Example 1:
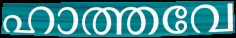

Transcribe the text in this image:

ഹാത്തവേ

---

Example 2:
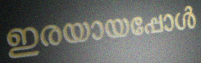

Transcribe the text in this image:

ഇരയായപ്പോൾ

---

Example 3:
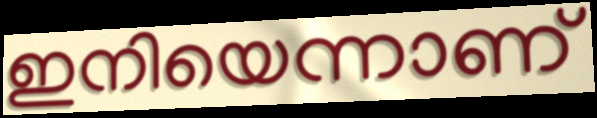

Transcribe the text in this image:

ഇനിയെന്നാണ്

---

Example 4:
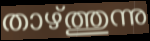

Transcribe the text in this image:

താഴ്ത്തുന്നു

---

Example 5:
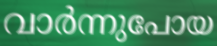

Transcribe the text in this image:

വാർന്നുപോയ